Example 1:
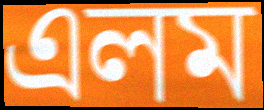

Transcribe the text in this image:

এলম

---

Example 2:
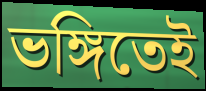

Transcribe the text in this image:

ভঙ্গিতেই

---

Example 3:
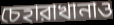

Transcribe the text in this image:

চেহারাখানাও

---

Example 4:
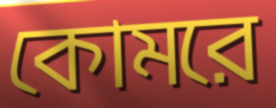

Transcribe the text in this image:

কোমরে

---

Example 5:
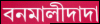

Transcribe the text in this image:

বনমালীদাদা